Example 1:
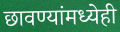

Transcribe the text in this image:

छावण्यांमध्येही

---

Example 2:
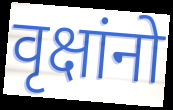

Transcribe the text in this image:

वृक्षांनो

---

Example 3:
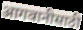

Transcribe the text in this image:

आगवानीसाठी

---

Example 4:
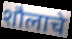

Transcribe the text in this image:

शौलाचे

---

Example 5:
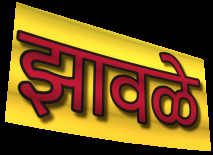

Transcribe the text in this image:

झावळे